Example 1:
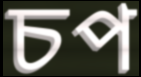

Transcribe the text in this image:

চপ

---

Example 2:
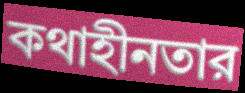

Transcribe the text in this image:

কথাহীনতার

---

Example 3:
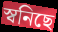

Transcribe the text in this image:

স্বনিছে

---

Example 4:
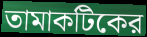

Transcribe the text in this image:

তামাকটিকের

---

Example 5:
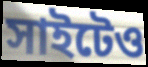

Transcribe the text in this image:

সাইটেও